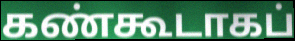
கண்கூடாகப்